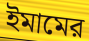
ইমামের